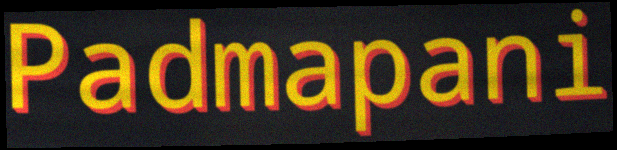
Padmapani